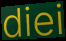
diei